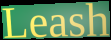
Leash